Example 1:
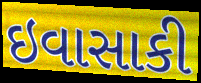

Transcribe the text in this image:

ઇવાસાકી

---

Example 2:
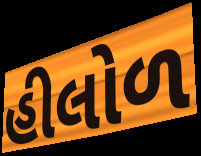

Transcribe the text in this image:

હીલોળ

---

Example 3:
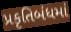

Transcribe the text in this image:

પ્રકૃતિબંધમાં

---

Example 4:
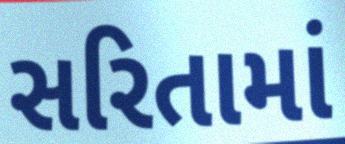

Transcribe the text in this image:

સરિતામાં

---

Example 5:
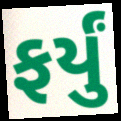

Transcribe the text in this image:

ફર્યું